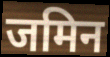
जमिन